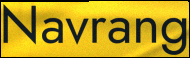
Navrang